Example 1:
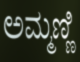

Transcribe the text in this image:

ಅಮ್ಮಣ್ಣಿ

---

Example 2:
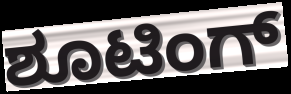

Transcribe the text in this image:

ಶೂಟಿಂಗ್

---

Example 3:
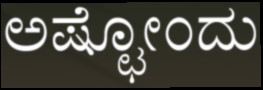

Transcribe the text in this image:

ಅಷ್ಟೋಂದು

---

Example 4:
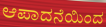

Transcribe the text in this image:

ಆಪಾದನೆಯಿಂದ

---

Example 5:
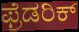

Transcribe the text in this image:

ಫ್ರೆಡರಿಕ್